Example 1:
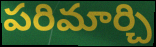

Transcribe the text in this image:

పరిమార్చి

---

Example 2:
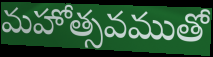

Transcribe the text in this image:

మహోత్సవముతో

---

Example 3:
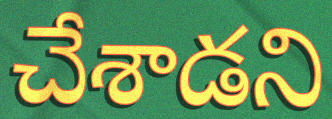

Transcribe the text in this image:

చేశాడని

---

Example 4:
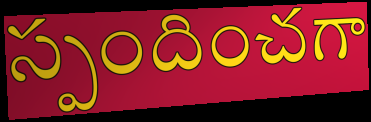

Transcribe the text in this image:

స్పందించగా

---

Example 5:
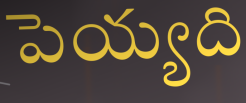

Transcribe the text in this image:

పెయ్యది